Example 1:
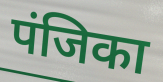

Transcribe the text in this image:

पंजिका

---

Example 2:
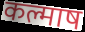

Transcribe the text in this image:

कल्माष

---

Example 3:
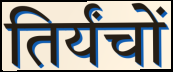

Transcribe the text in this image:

तिर्यंचों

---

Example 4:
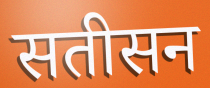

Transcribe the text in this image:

सतीसन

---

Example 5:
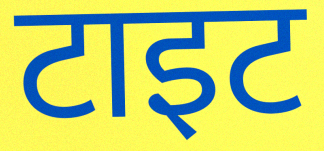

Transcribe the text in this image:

टाइट